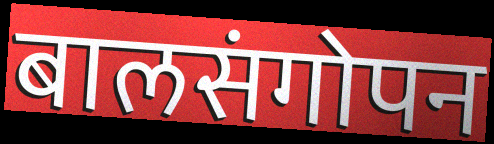
बालसंगोपन